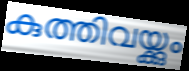
കുത്തിവയ്ക്കും